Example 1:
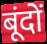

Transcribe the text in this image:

बूंदों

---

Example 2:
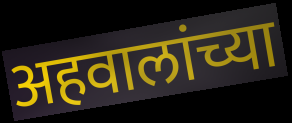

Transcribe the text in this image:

अहवालांच्या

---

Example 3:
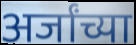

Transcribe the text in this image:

अर्जांच्या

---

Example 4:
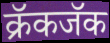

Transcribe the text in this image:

क्रॅकजॅक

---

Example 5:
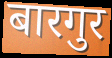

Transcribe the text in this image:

बारगुर